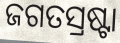
ଜଗତସ୍ରଷ୍ଟା